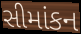
સીમાંકન